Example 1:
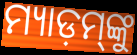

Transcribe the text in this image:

ମ୍ୟାଡ଼ମ୍‌ଙ୍କୁ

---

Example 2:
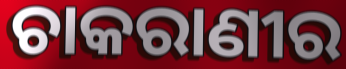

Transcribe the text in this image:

ଚାକରାଣୀର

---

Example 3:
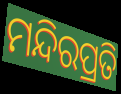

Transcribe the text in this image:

ମନ୍ଦିରପ୍ରତି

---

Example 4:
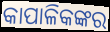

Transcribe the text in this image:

କାପାଳିକଙ୍କର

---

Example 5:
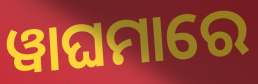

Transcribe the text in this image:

ୱାଘମାରେ